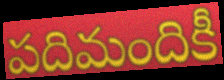
పదిమందికీ